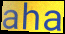
aha